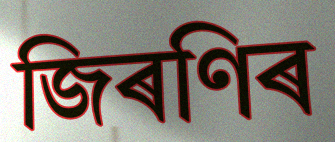
জিৰণিৰ